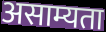
असाम्यता